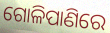
ଗୋଳିପାଣିରେ